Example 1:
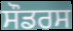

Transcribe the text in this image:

ਸੌਡਰਸ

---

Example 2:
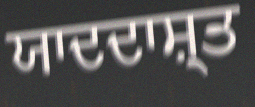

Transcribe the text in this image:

ਯਾਦਦਾਸ਼੍ਤ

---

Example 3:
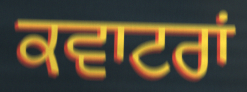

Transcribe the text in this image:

ਕਵਾਟਰਾਂ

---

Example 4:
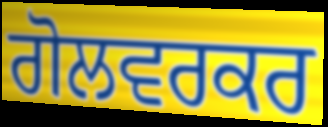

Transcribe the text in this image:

ਗੋਲਵਰਕਰ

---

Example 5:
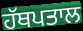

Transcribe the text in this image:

ਹੱਥਪਤਾਲ